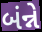
બંન્ને